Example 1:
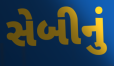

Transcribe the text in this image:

સેબીનું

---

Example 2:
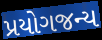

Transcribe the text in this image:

પ્રયોગજન્ય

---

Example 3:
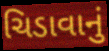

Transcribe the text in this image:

ચિડાવાનું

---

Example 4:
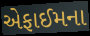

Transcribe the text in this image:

એફાઈમના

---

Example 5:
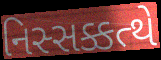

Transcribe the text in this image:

નિસ્સક્કત્થે